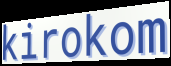
kirokom